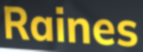
Raines